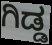
ಗಿಡ್ಡ